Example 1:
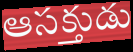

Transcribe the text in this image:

ఆసక్తుడు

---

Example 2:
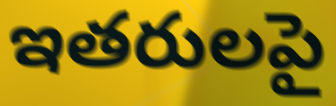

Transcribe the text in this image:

ఇతరులపై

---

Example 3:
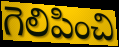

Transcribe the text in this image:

గెలిపించి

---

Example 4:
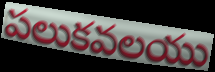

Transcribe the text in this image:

పలుకవలయు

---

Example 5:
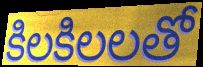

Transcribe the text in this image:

కిలకిలలతో